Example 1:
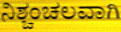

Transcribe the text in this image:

ನಿಶ್ಚಂಚಲವಾಗಿ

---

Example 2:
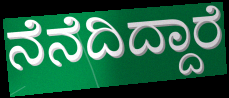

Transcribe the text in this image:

ನೆನೆದಿದ್ದಾರೆ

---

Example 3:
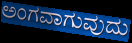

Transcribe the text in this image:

ಅಂಗವಾಗುವುದು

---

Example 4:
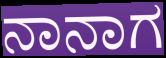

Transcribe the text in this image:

ನಾನಾಗ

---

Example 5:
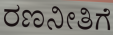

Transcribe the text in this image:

ರಣನೀತಿಗೆ